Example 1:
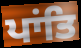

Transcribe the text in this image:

ਪਾਂਤਿ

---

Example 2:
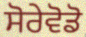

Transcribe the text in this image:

ਸੋਰੇਵੋਡੋ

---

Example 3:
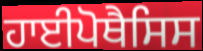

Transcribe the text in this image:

ਹਾਈਪੋਥੈਸਿਸ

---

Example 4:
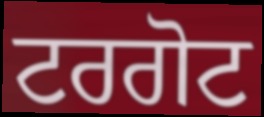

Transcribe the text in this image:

ਟਰਗੋਟ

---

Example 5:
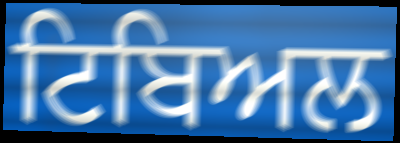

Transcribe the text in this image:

ਟਿਬਿਅਲ